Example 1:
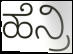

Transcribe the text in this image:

ಹೆನ್ರಿ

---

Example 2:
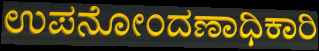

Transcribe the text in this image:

ಉಪನೋಂದಣಾಧಿಕಾರಿ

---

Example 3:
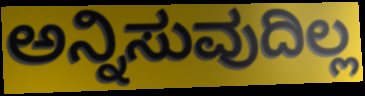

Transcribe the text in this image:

ಅನ್ನಿಸುವುದಿಲ್ಲ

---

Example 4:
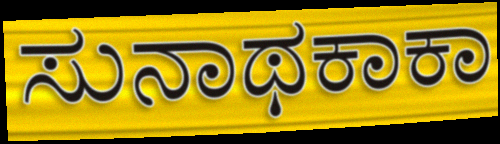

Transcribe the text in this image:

ಸುನಾಥಕಾಕಾ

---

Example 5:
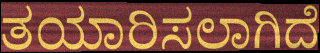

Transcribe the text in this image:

ತಯಾರಿಸಲಾಗಿದೆ